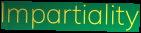
Impartiality